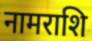
नामराशि